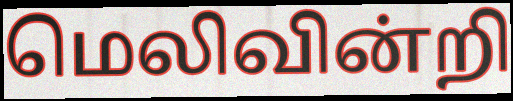
மெலிவின்றி